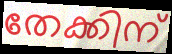
തേക്കിന്